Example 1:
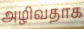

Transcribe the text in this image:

அழிவதாக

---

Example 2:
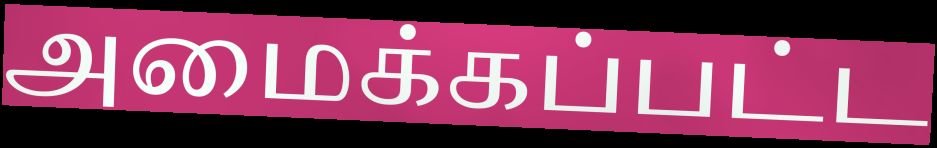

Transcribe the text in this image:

அமைக்கப்பட்ட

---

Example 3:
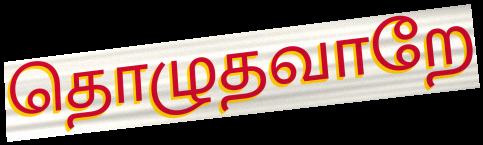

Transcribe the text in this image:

தொழுதவாறே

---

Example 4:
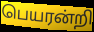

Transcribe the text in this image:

பெயரன்றி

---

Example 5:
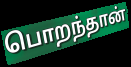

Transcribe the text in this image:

பொறந்தான்